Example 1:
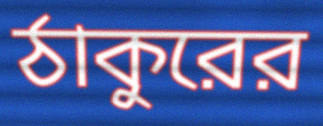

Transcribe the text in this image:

ঠাকুরের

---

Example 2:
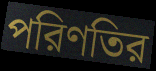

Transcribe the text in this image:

পরিণতির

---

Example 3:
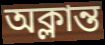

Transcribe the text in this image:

অক্লান্ত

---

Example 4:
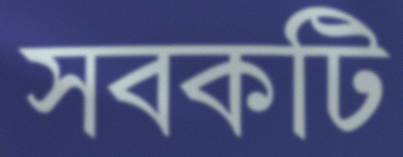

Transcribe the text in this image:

সবকটি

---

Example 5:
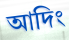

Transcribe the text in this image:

আদিং